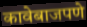
कावेबाजपणे